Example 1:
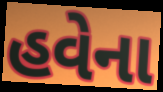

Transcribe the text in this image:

હવેના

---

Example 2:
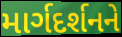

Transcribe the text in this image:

માર્ગદર્શનને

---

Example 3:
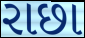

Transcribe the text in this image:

રાછા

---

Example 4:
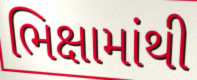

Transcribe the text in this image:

ભિક્ષામાંથી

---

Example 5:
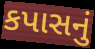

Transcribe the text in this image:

કપાસનું